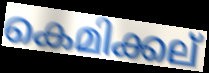
കെമിക്കല്